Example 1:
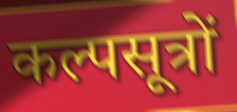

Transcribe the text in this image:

कल्पसूत्रों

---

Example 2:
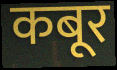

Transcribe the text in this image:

कबूर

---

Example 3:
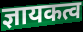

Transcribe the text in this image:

ज्ञायकत्व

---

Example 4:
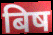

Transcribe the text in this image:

बिष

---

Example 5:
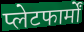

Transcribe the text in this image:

प्लेटफार्मों